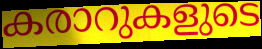
കരാറുകളുടെ